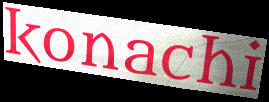
konachi